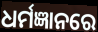
ଧର୍ମଜ୍ଞାନରେ